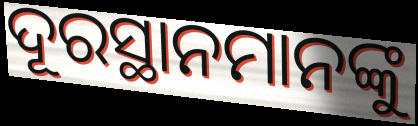
ଦୂରସ୍ଥାନମାନଙ୍କୁ